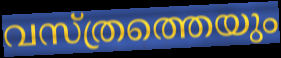
വസ്ത്രത്തെയും